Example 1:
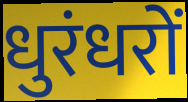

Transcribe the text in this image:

धुरंधरों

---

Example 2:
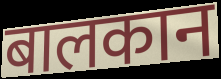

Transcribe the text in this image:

बालकान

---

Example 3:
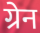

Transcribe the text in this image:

ग्रेन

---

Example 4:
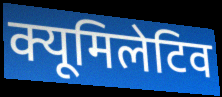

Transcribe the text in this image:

क्यूमिलेटिव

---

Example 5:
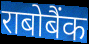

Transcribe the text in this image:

राबोबैंक